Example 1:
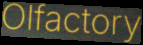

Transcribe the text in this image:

Olfactory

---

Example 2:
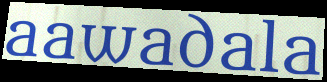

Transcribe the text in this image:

aawadala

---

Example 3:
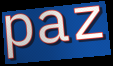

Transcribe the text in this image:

paz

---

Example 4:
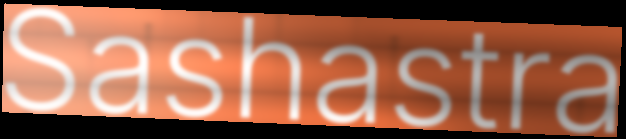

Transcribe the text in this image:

Sashastra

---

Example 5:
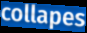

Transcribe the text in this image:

collapes